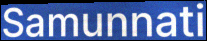
Samunnati